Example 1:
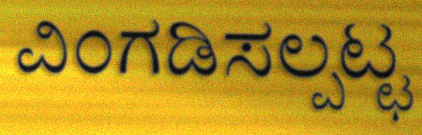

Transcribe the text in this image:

ವಿಂಗಡಿಸಲ್ಪಟ್ಟ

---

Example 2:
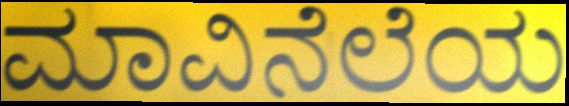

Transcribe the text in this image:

ಮಾವಿನೆಲೆಯ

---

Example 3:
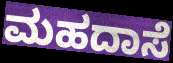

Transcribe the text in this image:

ಮಹದಾಸೆ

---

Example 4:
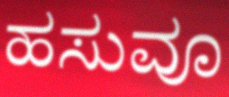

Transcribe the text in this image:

ಹಸುವೂ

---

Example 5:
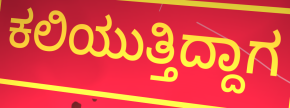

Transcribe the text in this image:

ಕಲಿಯುತ್ತಿದ್ದಾಗ